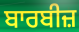
ਬਾਰਬੀਜ਼